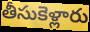
తీసుకెళ్లారు